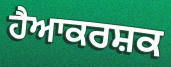
ਹੈਆਕਰਸ਼ਕ